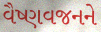
વૈષ્ણવજનને